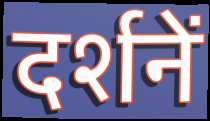
दर्शनें